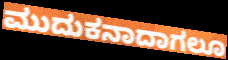
ಮುದುಕನಾದಾಗಲೂ